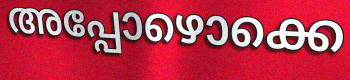
അപ്പോഴൊക്കെ